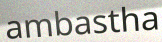
ambastha